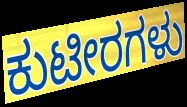
ಕುಟೀರಗಳು